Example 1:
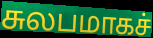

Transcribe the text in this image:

சுலபமாகச்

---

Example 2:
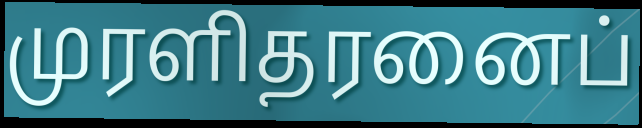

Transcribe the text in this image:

முரளிதரனைப்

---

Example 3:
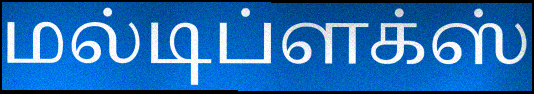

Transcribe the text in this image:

மல்டிப்ளக்ஸ்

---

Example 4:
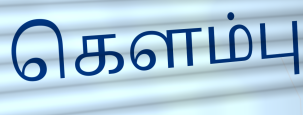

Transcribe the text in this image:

கௌம்பு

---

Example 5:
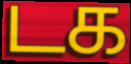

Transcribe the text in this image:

டக